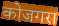
कोजगरा